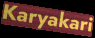
Karyakari